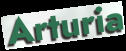
Arturia